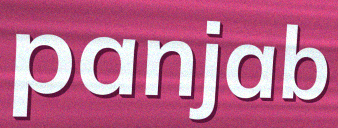
panjab